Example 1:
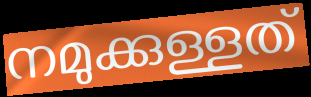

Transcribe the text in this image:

നമുക്കുള്ളത്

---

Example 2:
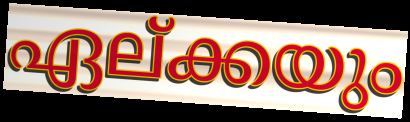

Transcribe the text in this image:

ഏല്ക്കയും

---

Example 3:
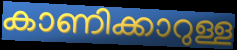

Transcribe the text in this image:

കാണിക്കാറുള്ള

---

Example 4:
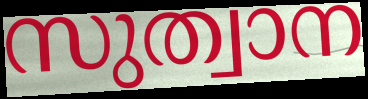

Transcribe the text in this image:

സുത്വാന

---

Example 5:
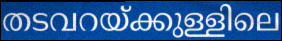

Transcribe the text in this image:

തടവറയ്ക്കുള്ളിലെ